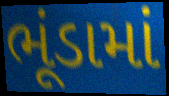
ભૂંડામાં